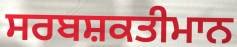
ਸਰਬਸ਼ਕਤੀਮਾਨ